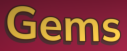
Gems